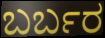
ಬರ್ಬರ